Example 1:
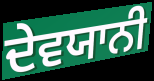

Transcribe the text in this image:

ਦੇਵਯਾਨੀ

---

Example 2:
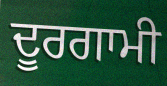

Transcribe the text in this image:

ਦੂਰਗਾਮੀ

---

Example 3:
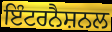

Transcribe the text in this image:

ਇੰਟਰਨੈਸ਼ਨਲ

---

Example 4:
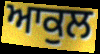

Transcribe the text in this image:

ਆਕੁਲ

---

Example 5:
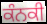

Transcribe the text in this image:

ਕੰਨਕੀ